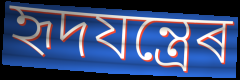
হৃদযন্ত্ৰেৰ